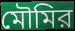
মৌমির